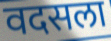
वदसला